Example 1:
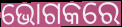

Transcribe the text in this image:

ଭୋଗକରେ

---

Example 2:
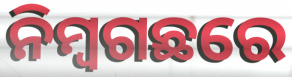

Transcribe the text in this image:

ନିମ୍ବଗଛରେ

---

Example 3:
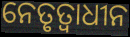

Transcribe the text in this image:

ନେତୃତ୍ୱାଧୀନ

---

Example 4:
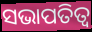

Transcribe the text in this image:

ସଭାପତିତ୍ବ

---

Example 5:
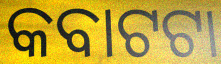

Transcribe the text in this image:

କବାଟଟା